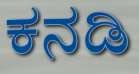
ಕನಡಿ